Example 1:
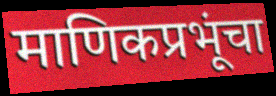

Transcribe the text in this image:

माणिकप्रभूंचा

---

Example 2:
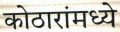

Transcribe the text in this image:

कोठारांमध्ये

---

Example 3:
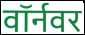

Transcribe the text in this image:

वॉर्नवर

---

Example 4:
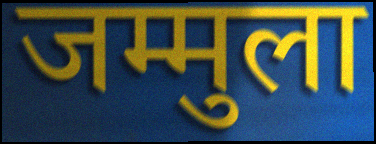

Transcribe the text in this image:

जम्मुला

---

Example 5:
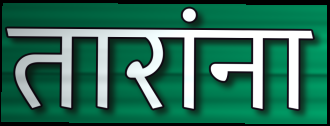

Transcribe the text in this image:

तारांना